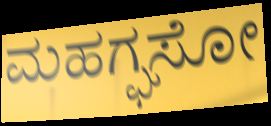
ಮಹಗ್ಘಸೋ